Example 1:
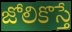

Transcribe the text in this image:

జోలికొస్తే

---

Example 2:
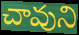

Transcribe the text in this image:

చావుని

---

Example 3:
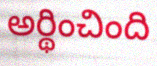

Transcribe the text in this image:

అర్థించింది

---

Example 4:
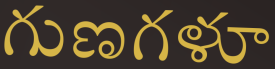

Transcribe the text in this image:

గుణగళూ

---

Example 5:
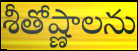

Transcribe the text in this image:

శీతోష్ణాలను